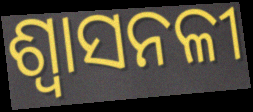
ଶ୍ଵାସନଳୀ